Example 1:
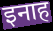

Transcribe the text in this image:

इनाह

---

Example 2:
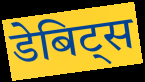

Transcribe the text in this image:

डेबिट्स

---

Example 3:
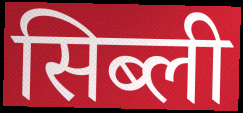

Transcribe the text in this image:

सिब्ली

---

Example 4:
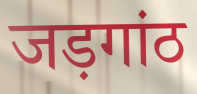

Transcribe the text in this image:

जड़गांठ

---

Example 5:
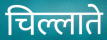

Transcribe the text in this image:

चिल्लाते